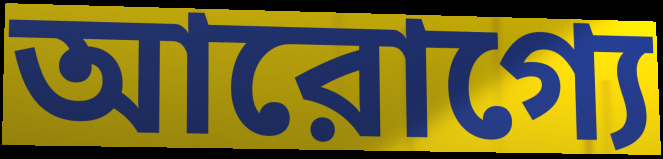
আরোগ্যে